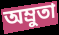
অম্রুতা